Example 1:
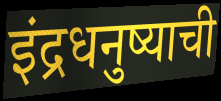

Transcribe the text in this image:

इंद्रधनुष्याची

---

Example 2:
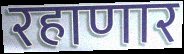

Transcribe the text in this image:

रहाणार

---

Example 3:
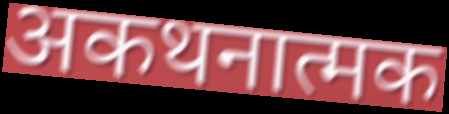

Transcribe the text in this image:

अकथनात्मक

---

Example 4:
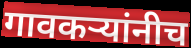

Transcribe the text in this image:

गावकऱ्यांनीच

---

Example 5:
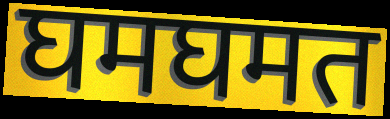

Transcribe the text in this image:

घमघमत